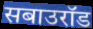
सबाउरॉड